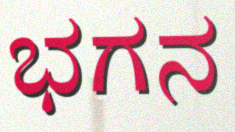
ಭಗನ